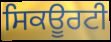
ਸਿਕਊਰਟੀ